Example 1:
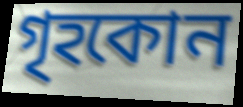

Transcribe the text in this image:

গৃহকোন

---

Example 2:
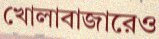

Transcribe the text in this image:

খোলাবাজারেও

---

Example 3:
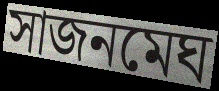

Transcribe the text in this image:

সাজনমেঘ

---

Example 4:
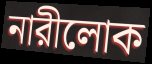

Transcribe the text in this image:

নারীলোক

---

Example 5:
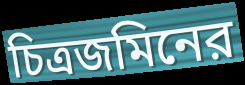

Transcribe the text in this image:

চিত্রজমিনের